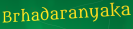
Brhadaranyaka